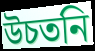
উচতনি